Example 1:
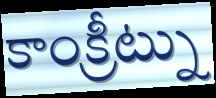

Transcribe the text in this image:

కాంక్రీట్ను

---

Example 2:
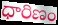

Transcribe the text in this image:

ధారిణం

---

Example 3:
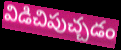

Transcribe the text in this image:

విడిచిపుచ్చడం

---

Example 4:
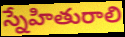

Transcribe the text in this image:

స్నేహితురాలి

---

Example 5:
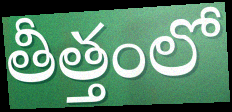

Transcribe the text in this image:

తీత్తంలో